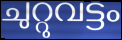
ചുറ്റുവട്ടം